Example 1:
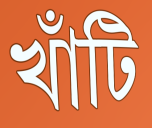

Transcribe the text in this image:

খাঁটি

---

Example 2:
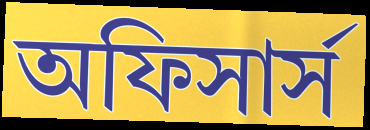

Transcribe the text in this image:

অফিসার্স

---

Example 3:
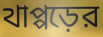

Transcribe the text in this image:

থাপ্পড়ের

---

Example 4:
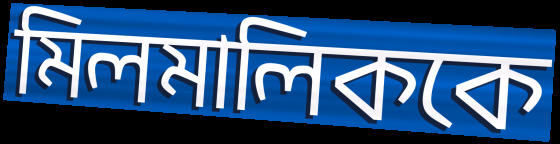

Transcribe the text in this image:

মিলমালিককে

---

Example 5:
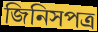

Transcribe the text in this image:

জিনিসপত্র